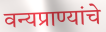
वन्यप्राण्यांचे